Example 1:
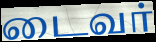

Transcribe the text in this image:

டைவர்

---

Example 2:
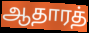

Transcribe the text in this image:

ஆதாரத்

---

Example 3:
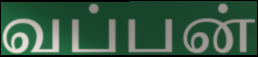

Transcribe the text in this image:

வப்பன்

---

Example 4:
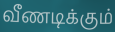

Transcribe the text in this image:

வீணடிக்கும்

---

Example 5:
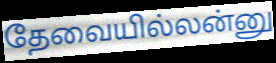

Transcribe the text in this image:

தேவையில்லன்னு